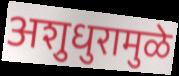
अश्रुधुरामुळे